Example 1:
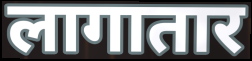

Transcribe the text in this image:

लागातार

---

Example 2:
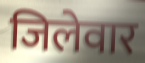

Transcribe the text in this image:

जिलेवार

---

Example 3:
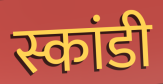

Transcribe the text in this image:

स्कांडी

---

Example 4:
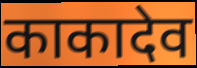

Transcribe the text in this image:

काकादेव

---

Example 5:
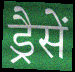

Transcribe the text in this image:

ड्रैसें